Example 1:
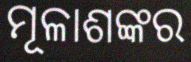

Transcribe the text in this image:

ମୂଳାଶଙ୍କର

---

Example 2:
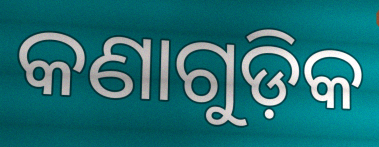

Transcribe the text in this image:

କଣାଗୁଡ଼ିକ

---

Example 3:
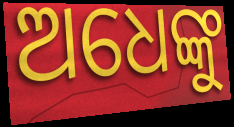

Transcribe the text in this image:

ଅଧେଙ୍କୁ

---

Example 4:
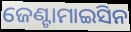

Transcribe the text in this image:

ଜେଣ୍ଟାମାଇସିନ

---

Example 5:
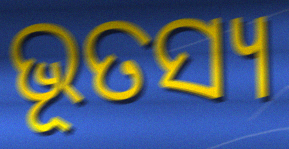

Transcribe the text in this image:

ଭୂତସ୍ୟ